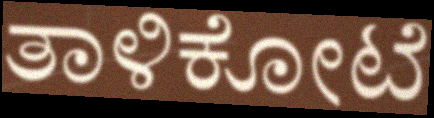
ತಾಳಿಕೋಟೆ